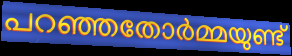
പറഞ്ഞതോർമ്മയുണ്ട്